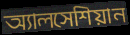
অ্যালসেশিয়ান